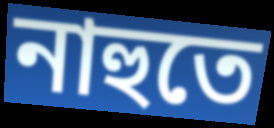
নাহুতে